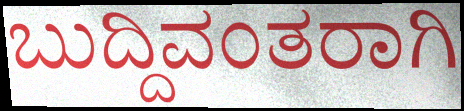
ಬುದ್ದಿವಂತರಾಗಿ